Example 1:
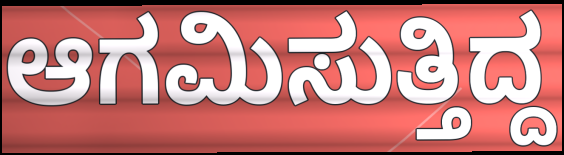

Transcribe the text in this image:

ಆಗಮಿಸುತ್ತಿದ್ದ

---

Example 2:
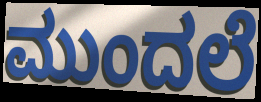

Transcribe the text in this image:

ಮುಂದಲೆ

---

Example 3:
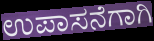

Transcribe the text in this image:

ಉಪಾಸನೆಗಾಗಿ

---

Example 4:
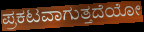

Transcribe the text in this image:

ಪ್ರಕಟವಾಗುತ್ತದೆಯೋ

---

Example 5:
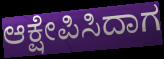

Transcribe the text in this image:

ಆಕ್ಷೇಪಿಸಿದಾಗ